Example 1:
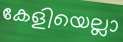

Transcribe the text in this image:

കേളിയെല്ലാ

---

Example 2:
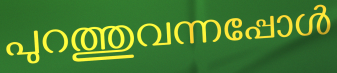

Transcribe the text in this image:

പുറത്തുവന്നപ്പോൾ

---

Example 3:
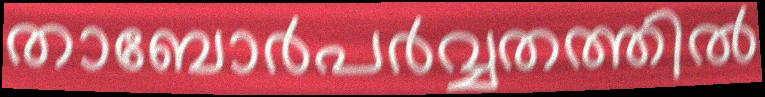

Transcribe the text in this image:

താബോർപർവ്വതത്തിൽ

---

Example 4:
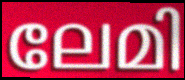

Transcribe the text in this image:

ലേമി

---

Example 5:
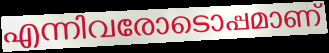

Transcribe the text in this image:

എന്നിവരോടൊപ്പമാണ്